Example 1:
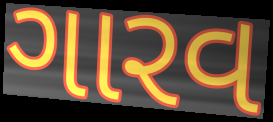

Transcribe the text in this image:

ગારવ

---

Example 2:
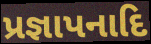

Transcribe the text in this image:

પ્રજ્ઞાપનાદિ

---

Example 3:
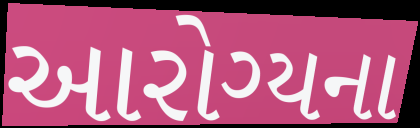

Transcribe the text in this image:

આરોગ્યના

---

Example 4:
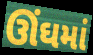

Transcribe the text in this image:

ઊંઘમાં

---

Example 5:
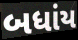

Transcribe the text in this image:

બધાંય